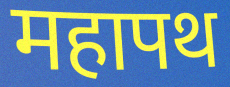
महापथ